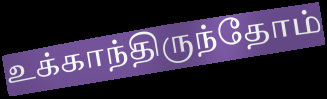
உக்காந்திருந்தோம்